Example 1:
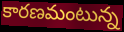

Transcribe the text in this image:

కారణమంటున్న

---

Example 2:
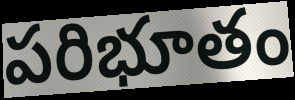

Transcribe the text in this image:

పరిభూతం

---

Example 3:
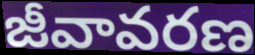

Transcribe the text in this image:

జీవావరణ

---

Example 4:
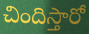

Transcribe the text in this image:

చిందిస్తారో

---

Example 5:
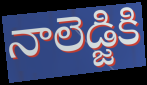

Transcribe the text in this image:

నాలెడ్జికి